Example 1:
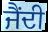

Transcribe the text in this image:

ਜੈਂਦੀ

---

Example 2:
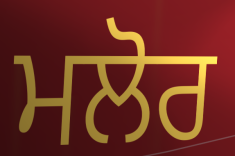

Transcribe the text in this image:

ਮਲੋਰ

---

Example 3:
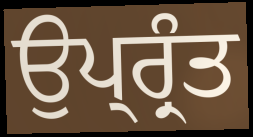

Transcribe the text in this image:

ਉਪ੍ਰ੍ਰੰਤ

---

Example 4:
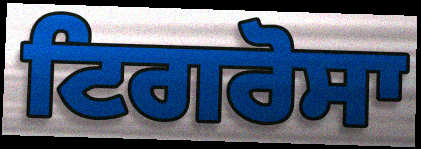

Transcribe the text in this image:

ਟਿਗਰੋਸਾ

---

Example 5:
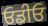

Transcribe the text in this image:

ਓਡੀਓ